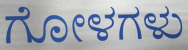
ಗೋಳಗಳು